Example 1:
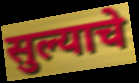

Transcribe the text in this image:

सुल्याचे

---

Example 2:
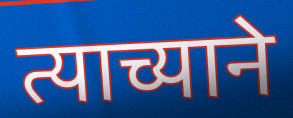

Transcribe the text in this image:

त्याच्याने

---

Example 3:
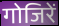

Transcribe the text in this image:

गोजिरें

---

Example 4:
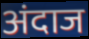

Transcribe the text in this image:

अंदाज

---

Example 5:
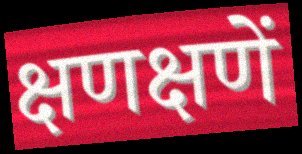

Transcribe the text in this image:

क्षणक्षणें